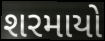
શરમાયો